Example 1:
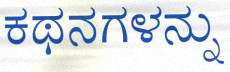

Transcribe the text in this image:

ಕಥನಗಳನ್ನು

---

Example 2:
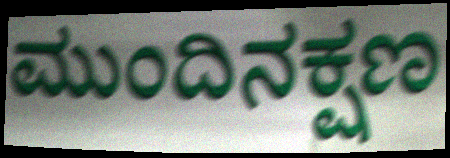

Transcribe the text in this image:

ಮುಂದಿನಕ್ಷಣ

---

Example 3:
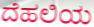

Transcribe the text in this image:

ದೆಹಲಿಯ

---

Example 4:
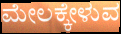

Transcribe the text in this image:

ಮೇಲಕ್ಕೇಳುವ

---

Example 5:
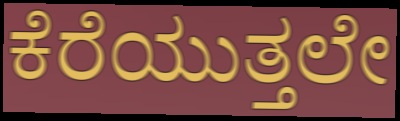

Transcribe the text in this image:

ಕೆರೆಯುತ್ತಲೇ